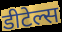
डीटेल्स